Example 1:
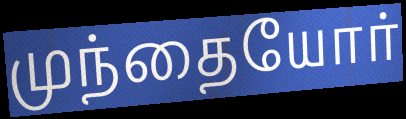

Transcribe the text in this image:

முந்தையோர்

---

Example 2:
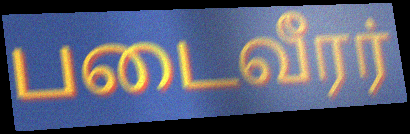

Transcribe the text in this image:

படைவீரர்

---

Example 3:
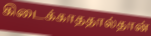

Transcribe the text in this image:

கிடைக்காததால்தான்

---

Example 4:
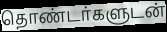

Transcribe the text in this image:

தொண்டர்களுடன்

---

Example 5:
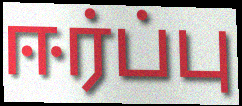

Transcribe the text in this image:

ஈர்ப்பு